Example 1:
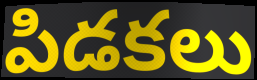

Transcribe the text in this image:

పిడకలు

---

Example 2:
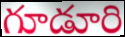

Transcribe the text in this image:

గూడూరి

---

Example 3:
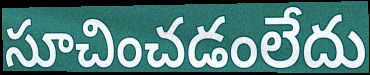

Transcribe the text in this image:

సూచించడంలేదు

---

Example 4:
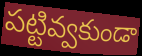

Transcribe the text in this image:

పట్టివ్వకుండా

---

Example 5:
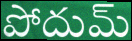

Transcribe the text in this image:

పోదుమ్